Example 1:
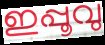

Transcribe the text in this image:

ഇപ്പൂവു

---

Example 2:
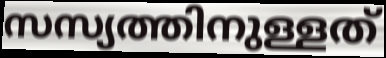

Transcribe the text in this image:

സസ്യത്തിനുള്ളത്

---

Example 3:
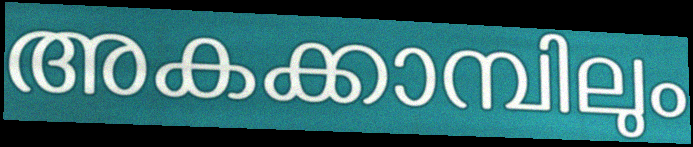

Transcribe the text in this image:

അകക്കാമ്പിലും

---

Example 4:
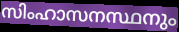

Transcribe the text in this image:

സിംഹാസനസ്ഥനും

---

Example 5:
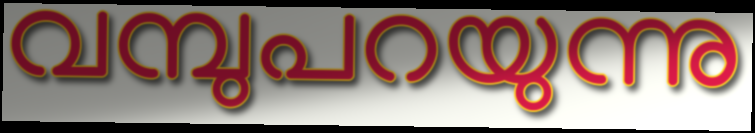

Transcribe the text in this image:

വമ്പുപറയുന്നു